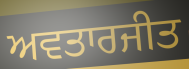
ਅਵਤਾਰਜੀਤ